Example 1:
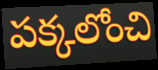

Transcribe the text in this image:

పక్కలోంచి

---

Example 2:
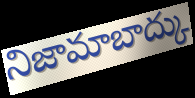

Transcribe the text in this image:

నిజామాబాద్కు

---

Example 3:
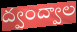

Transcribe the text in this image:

ద్వంద్వాల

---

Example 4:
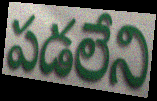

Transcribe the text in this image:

పడలేని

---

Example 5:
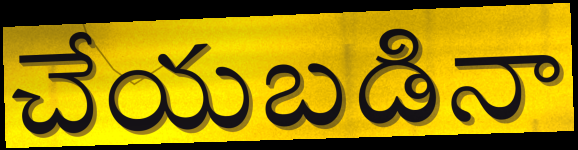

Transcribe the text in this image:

చేయబడినా